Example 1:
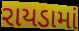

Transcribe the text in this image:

રાયડામાં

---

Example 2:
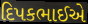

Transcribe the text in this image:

દિપકભાઈએ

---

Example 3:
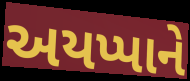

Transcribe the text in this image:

અયપ્પાને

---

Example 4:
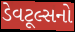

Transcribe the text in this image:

ડેવટૂલ્સનો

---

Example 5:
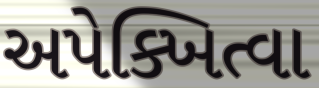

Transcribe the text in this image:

અપેક્ખિત્વા